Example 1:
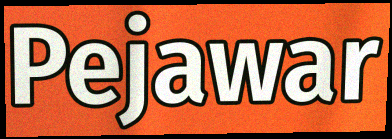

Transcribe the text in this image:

Pejawar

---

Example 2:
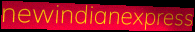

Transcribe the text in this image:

newindianexpress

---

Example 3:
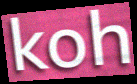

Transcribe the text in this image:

koh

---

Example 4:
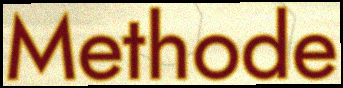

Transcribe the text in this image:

Methode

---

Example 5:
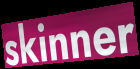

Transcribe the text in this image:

skinner